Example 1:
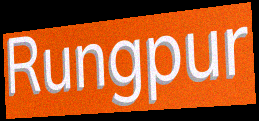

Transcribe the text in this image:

Rungpur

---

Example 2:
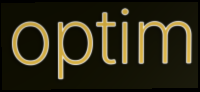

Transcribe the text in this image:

optim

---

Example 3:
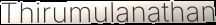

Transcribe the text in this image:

Thirumulanathan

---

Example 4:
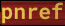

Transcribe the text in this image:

pnref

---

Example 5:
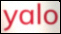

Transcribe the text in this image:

yalo